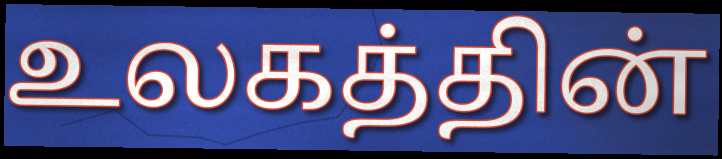
உலகத்தின்